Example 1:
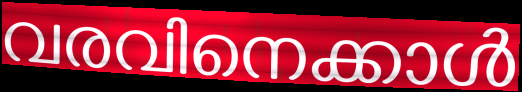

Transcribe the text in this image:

വരവിനെക്കാൾ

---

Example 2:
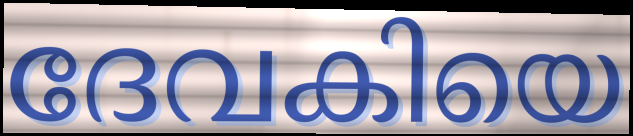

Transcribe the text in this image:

ദേവകിയെ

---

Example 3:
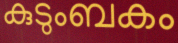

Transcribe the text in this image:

കുടുംബകം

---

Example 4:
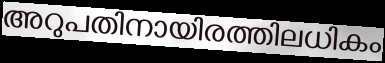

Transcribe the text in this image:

അറുപതിനായിരത്തിലധികം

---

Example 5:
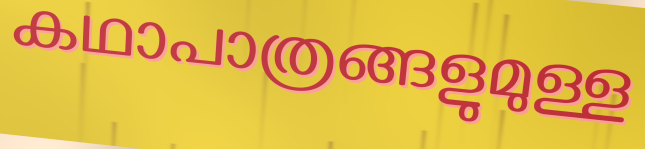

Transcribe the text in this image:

കഥാപാത്രങ്ങളുമുള്ള